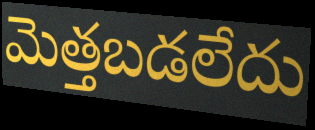
మెత్తబడలేదు